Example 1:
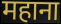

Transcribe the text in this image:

महाना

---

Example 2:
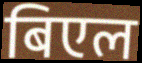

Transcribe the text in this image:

बिएल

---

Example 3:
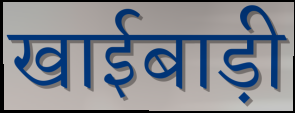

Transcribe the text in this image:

खाईबाड़ी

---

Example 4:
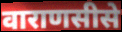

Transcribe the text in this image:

वाराणसीसे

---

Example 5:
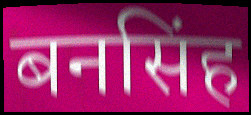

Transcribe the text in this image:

बनसिंह